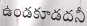
ఉండకూడదనీ